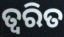
ତ୍ଵରିତ